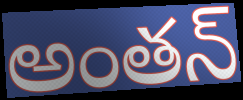
అంతన్